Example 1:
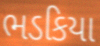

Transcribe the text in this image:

ભડકિયા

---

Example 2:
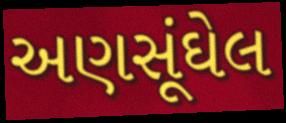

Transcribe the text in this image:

અણસૂંઘેલ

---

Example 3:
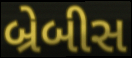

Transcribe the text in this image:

બ્રેબીસ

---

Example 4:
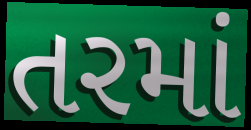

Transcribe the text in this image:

તરમાં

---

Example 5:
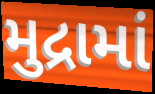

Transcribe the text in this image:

મુદ્રામાં